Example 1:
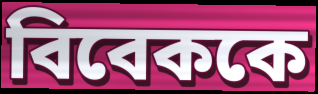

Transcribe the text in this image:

বিবেককে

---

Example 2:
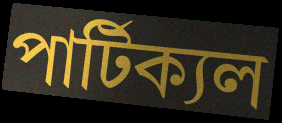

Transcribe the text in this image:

পার্টিক্যল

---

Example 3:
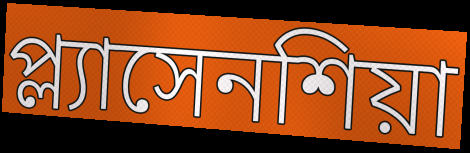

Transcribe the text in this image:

প্ল্যাসেনশিয়া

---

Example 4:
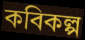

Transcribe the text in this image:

কবিকল্প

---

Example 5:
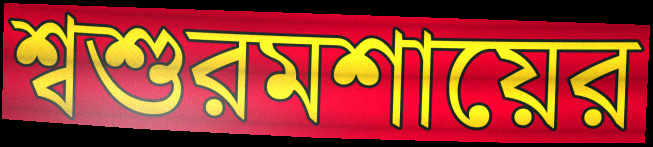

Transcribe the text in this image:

শ্বশুরমশায়ের